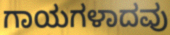
ಗಾಯಗಳಾದವು